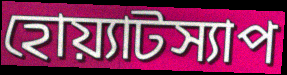
হোয়্যাটস্যাপ